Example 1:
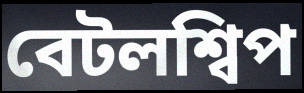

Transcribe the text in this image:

বেটলশ্বিপ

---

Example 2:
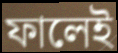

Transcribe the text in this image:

ফালেই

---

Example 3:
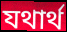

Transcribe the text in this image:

যথাৰ্থ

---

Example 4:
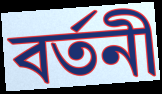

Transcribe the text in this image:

বৰ্তনী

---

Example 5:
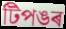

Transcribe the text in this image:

টিপঙৰ